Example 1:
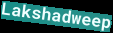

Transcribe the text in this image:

Lakshadweep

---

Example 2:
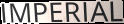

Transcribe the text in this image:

IMPERIAL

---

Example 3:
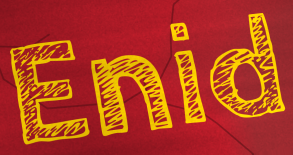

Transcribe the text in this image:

Enid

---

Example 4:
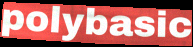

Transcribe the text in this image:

polybasic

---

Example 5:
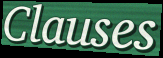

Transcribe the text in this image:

Clauses